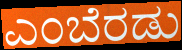
ಎಂಬೆರಡು